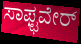
ಸಾಫ್ಟವೇರ್